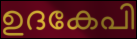
ഉദകേപി